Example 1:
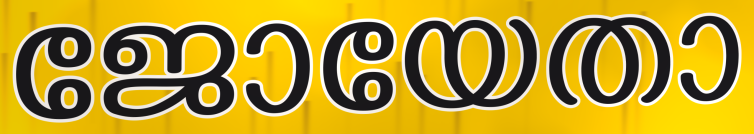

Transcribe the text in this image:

ജോയേതാ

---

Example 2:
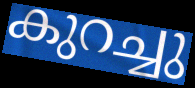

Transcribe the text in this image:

കുറച്ചു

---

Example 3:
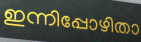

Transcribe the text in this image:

ഇന്നിപ്പോഴിതാ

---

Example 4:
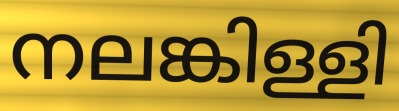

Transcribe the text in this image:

നലങ്കിള്ളി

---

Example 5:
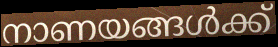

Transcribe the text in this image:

നാണയങ്ങൾക്ക്